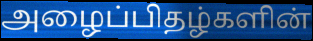
அழைப்பிதழ்களின்